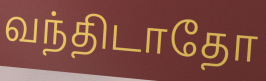
வந்திடாதோ